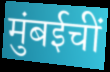
मुंबईचीं